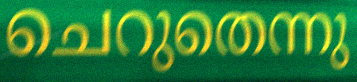
ചെറുതെന്നു